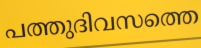
പത്തുദിവസത്തെ